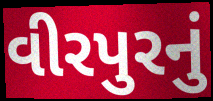
વીરપુરનું